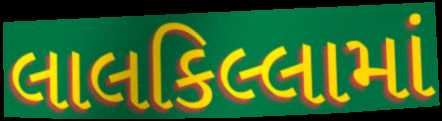
લાલકિલ્લામાં